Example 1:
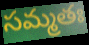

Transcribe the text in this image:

సమ్మతః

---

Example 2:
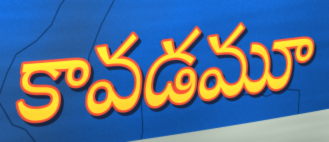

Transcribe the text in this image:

కావడమూ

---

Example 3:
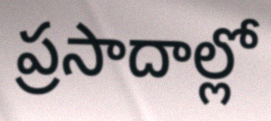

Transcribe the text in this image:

ప్రసాదాల్లో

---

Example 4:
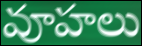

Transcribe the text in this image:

వూహలు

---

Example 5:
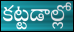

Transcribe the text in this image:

కట్టడాల్లో